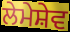
ਲੇਮੇਸ਼ੇਵ